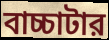
বাচ্চাটার